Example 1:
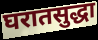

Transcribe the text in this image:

घरातसुद्धा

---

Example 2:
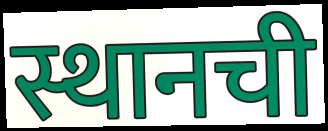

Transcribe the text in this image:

स्थानची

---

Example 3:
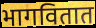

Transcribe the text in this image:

भागवितात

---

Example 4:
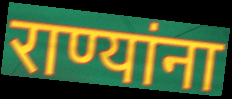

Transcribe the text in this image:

राण्यांना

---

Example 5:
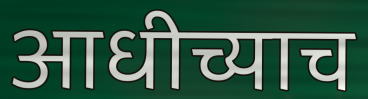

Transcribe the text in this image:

आधीच्याच